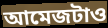
আমেজটাও